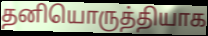
தனியொருத்தியாக